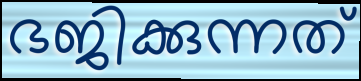
ഭജിക്കുന്നത്